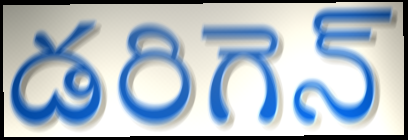
డరిగెన్